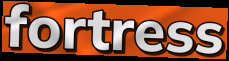
fortress